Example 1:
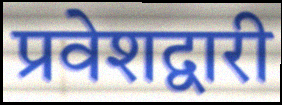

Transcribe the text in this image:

प्रवेशद्वारी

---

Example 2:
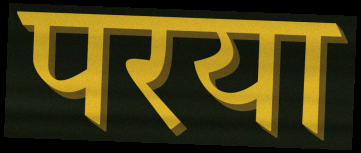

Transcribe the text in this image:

परया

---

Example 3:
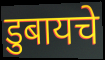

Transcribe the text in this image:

डुबायचे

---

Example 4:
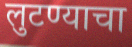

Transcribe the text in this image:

लुटण्याचा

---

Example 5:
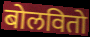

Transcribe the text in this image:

बोलवितो